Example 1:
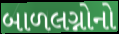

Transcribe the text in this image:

બાળલગ્નોનો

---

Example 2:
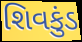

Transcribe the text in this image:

શિવકુંડ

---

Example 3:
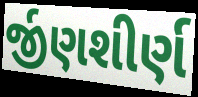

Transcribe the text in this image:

ર્જીણશીર્ણ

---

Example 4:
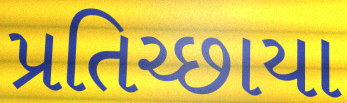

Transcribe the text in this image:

પ્રતિચ્છાયા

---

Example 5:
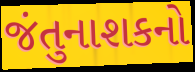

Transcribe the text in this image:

જંતુનાશકનો